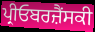
ਪ੍ਰੀਓਬਰਜ਼ੈਂਸਕੀ